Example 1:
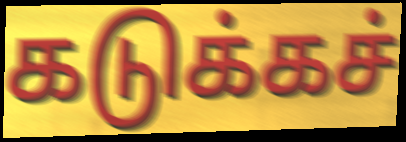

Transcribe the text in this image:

கடுக்கச்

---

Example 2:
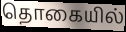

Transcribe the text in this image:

தொகையில்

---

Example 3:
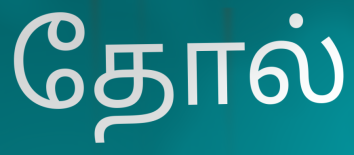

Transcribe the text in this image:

தோல்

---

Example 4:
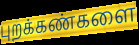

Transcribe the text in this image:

புறக்கண்களை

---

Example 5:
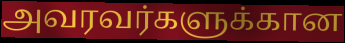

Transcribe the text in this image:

அவரவர்களுக்கான